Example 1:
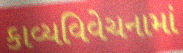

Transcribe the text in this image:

કાવ્યવિવેચનામાં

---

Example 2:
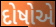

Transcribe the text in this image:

દોષોએ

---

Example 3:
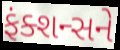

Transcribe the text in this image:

ફંક્શન્સને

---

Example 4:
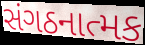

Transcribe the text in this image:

સંગઠનાત્મક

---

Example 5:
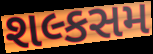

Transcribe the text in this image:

શલ્કસમ